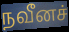
நவீனச்